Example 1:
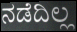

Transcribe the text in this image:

ನಡೆದಿಲ್ಲ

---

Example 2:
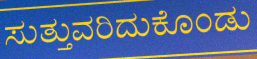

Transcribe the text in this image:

ಸುತ್ತುವರಿದುಕೊಂಡು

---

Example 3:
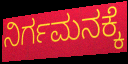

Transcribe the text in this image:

ನಿರ್ಗಮನಕ್ಕೆ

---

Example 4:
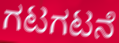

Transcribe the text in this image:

ಗಟಗಟನೆ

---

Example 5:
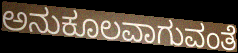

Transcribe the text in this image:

ಅನುಕೂಲವಾಗುವಂತೆ